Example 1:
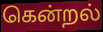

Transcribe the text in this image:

கென்றல்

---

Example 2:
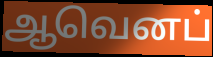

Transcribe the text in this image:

ஆவெனப்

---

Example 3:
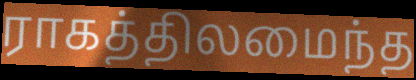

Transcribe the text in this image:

ராகத்திலமைந்த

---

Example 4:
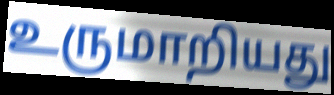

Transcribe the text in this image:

உருமாறியது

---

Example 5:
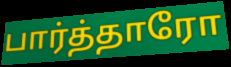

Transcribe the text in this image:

பார்த்தாரோ